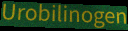
Urobilinogen